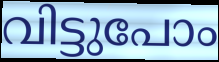
വിട്ടുപോം